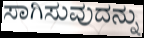
ಸಾಗಿಸುವುದನ್ನು